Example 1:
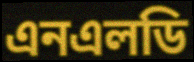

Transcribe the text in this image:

এনএলডি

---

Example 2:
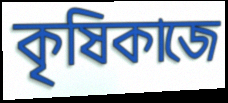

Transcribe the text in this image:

কৃষিকাজে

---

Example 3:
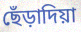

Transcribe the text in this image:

ছেঁড়াদিয়া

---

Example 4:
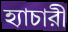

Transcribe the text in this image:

হ্যাচারী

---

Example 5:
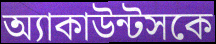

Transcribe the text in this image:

অ্যাকাউন্টসকে